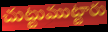
చుట్టుముట్టారు